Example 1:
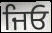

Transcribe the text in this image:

ਜਿਓ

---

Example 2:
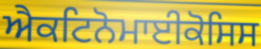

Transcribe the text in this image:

ਐਕਟਿਨੋਮਾਈਕੋਸਿਸ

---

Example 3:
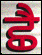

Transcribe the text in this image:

ਛੈ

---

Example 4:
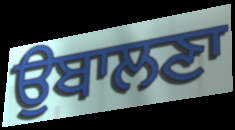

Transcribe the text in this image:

ਉਬਾਲਣਾ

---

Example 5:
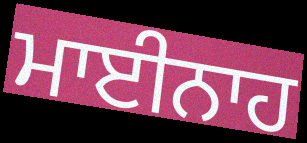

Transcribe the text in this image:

ਮਾਈਨਾਹ